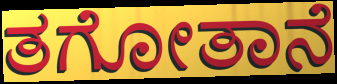
ತಗೋತಾನೆ